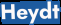
Heydt